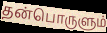
தன்பொருளும்